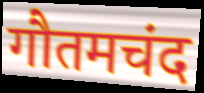
गौतमचंद